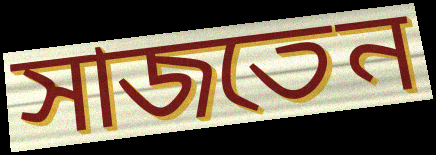
সাজতেন